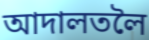
আদালতলৈ